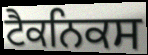
ਟੈਕਨਿਕਸ